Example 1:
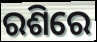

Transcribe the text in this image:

ରଶିରେ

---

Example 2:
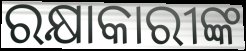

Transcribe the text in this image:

ରକ୍ଷାକାରୀଙ୍କ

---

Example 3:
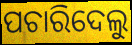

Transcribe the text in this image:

ପଚାରିଦେଲୁ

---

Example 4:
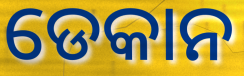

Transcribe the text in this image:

ଡେକାନ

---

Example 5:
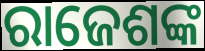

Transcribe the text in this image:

ରାଜେଶଙ୍କ